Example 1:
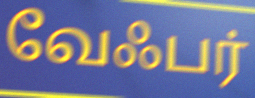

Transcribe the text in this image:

வேஃபர்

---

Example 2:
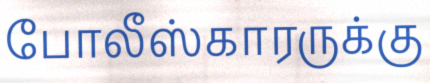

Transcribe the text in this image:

போலீஸ்காரருக்கு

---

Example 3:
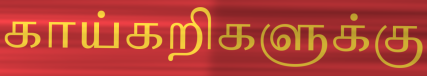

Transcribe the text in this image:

காய்கறிகளுக்கு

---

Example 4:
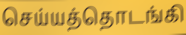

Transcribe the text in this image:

செய்யத்தொடங்கி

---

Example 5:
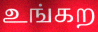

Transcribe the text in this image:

உங்கற